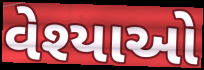
વેશ્યાઓ